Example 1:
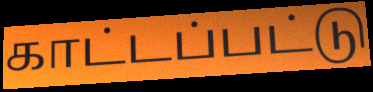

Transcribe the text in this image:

காட்டப்பட்டு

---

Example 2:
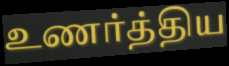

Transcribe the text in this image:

உணர்த்திய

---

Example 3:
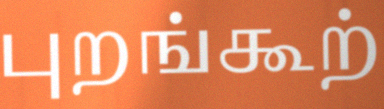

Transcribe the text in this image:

புறங்கூற்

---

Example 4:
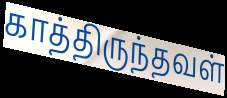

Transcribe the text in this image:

காத்திருந்தவள்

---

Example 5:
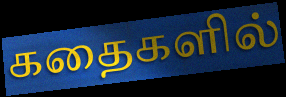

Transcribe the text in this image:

கதைகளில்